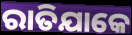
ରାତିଯାକେ